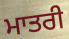
ਮਾਤਰੀ